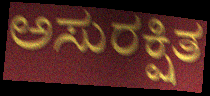
ಅಸುರಕ್ಷಿತ